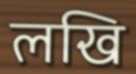
लखि